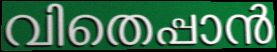
വിതെപ്പാൻ